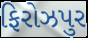
ફિરોઝપુર